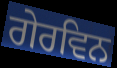
ਗੇਰਵਿਨ